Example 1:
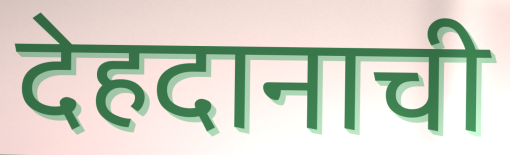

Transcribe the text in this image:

देहदानाची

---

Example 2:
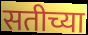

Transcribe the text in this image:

सतीच्या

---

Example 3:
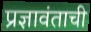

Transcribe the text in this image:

प्रज्ञावंताची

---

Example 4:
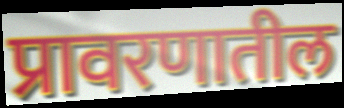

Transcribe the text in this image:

प्रावरणातील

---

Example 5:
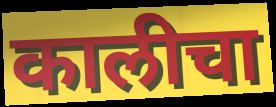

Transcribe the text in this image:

कालीचा